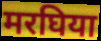
मरघिया